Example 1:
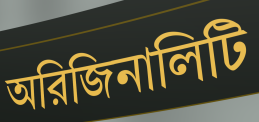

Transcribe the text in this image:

অরিজিনালিটি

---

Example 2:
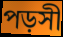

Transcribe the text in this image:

পড়সী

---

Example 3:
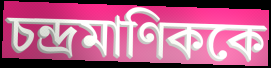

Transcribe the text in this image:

চন্দ্রমাণিককে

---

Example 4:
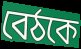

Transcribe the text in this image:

বেঠকে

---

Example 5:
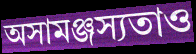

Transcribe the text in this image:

অসামঞ্জস্যতাও